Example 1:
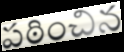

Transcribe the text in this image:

పఠించిన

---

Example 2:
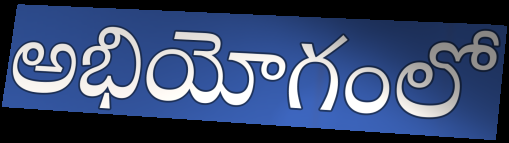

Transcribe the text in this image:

అభియోగంలో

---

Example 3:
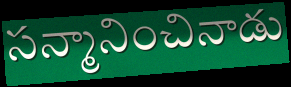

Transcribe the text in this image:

సన్మానించినాడు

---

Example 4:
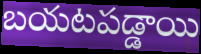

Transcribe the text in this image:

బయటపడ్డాయి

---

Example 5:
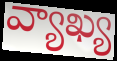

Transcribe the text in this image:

వ్యాఖ్య